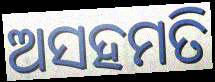
ଅସହମତି